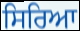
ਸਿਰਿਆ